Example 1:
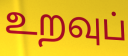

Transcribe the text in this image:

உறவுப்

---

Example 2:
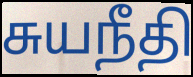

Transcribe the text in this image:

சுயநீதி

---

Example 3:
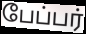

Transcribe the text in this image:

பேப்பர்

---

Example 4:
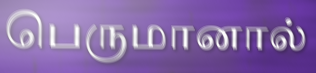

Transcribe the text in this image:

பெருமானால்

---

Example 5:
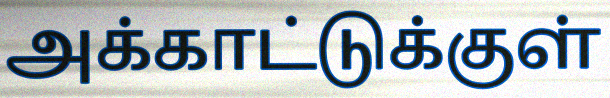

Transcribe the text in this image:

அக்காட்டுக்குள்